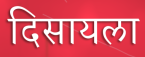
दिसायला